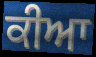
ਕੀਆ